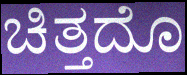
ಚಿತ್ತದೊ